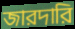
জারদারি